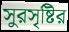
সুরসৃষ্টির